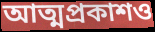
আত্মপ্রকাশও